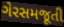
ગેરસમજૂતી